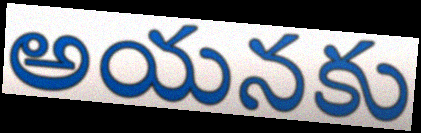
అయనకు